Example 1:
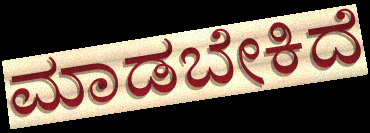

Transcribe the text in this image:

ಮಾಡಬೇಕಿದೆ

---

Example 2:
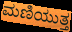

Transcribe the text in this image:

ಮಣಿಯುತ್ತ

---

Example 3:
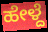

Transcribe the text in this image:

ಹೇಳ್ದೆ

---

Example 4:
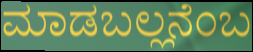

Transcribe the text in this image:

ಮಾಡಬಲ್ಲನೆಂಬ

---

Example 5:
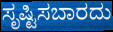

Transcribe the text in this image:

ಸೃಷ್ಟಿಸಬಾರದು